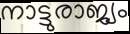
നാട്ടുരാജ്യം